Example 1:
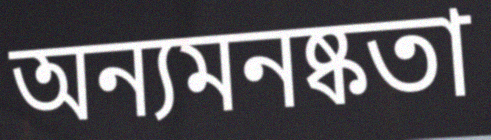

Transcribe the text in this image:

অন্যমনষ্কতা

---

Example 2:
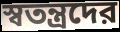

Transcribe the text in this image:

স্বতন্ত্রদের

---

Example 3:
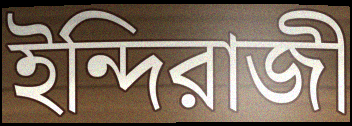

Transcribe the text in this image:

ইন্দিরাজী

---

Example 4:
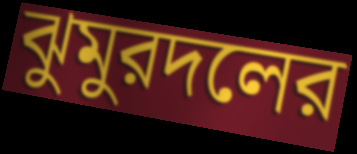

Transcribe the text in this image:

ঝুমুরদলের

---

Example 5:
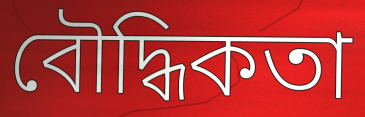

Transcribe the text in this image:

বৌদ্ধিকতা